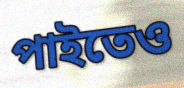
পাইতেও